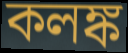
কলঙ্ক